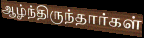
ஆழ்ந்திருந்தார்கள்